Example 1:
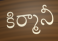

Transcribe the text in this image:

కిర్మానీ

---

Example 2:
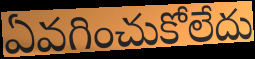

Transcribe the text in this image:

ఏవగించుకోలేదు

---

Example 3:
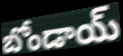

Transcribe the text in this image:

బోండాయ్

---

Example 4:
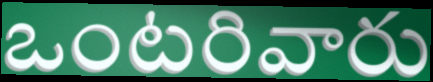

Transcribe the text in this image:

ఒంటరివారు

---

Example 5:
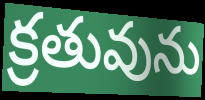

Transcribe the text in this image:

క్రతువును